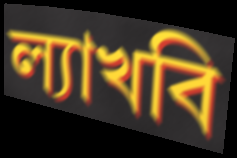
ল্যাখবি